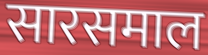
सारसमाल